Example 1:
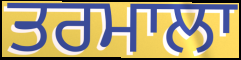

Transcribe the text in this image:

ਤਰਮਾਲਾ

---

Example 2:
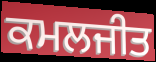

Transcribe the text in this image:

ਕਮਲਜੀਤ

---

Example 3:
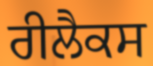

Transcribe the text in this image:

ਰੀਲੈਕਸ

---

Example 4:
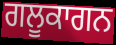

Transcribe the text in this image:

ਗਲੂਕਾਗਨ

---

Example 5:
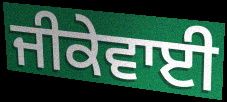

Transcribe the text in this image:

ਜੀਕੇਵਾਈ